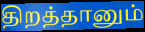
திறத்தானும்